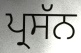
ਪ੍ਰਸੱਨ